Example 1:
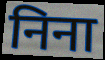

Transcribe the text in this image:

निना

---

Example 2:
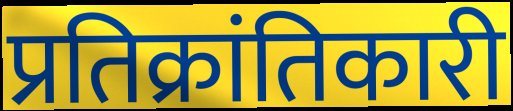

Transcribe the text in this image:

प्रतिक्रांतिकारी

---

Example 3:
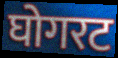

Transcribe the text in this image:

घोगरट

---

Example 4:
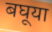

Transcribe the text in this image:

बघूया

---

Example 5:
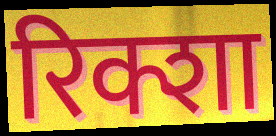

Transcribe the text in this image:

रिक्शा